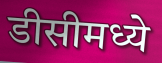
डीसीमध्ये